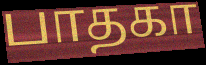
பாதகா